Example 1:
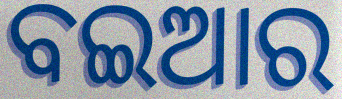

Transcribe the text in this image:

ବଇଆର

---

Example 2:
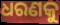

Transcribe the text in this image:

ଧରଣକୁ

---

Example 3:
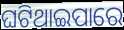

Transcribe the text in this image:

ଘଟିଥାଇପାରେ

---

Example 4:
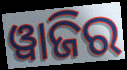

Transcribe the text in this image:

ୱାଜିର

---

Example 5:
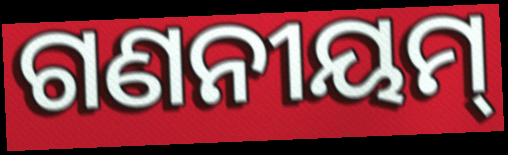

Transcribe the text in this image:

ଗଣନୀୟମ୍